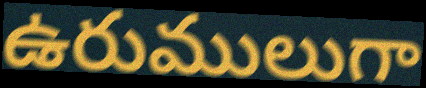
ఉరుములుగా